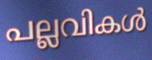
പല്ലവികൾ